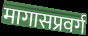
मागासप्रवर्ग